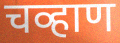
चव्हाण